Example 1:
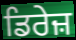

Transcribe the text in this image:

ਡਿਰੇਜ਼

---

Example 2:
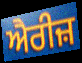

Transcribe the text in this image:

ਐਰੀਜ਼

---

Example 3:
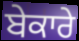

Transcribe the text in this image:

ਬੇਕਾਰੇ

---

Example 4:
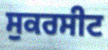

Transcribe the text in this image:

ਸੁਕਰਸੀਟ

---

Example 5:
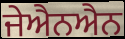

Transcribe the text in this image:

ਜੇਐਨਐਨ